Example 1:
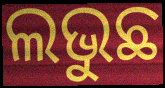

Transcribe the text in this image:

ଲଭୁଛ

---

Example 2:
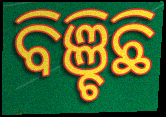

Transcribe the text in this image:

ବିଞ୍ଚିଛି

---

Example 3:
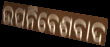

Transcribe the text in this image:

ଉପନିବେଶବାଦ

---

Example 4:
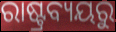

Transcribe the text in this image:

ରାଷ୍ଟ୍ରବ୍ୟୟରୁ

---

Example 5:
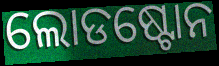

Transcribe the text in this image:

ଲୋଡଷ୍ଟୋନ